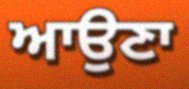
ਆਉਣਾ